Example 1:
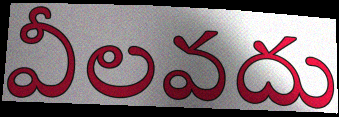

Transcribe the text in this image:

వీలవదు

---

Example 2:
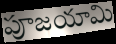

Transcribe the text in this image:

పూజయామి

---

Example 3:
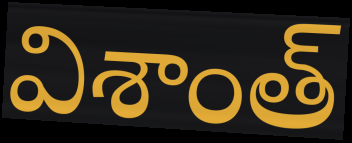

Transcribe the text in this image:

విశాంత్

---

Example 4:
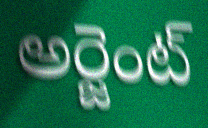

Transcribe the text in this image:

అర్జెంట్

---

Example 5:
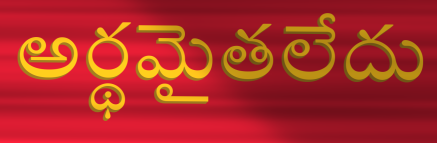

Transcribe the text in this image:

అర్థమైతలేదు